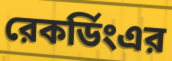
রেকর্ডিংএর